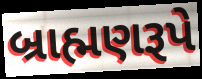
બ્રાહ્મણરૂપે